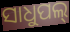
ସାଧୁପଲ୍